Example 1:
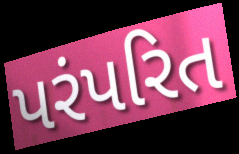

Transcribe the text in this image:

પરંપરિત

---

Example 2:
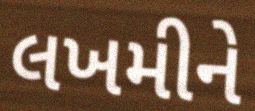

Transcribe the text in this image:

લખમીને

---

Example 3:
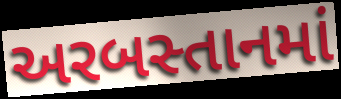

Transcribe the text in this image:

અરબસ્તાનમાં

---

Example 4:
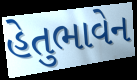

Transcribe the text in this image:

હેતુભાવેન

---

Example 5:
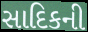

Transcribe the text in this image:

સાદિકની